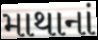
માથાનાં